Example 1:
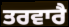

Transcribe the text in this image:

ਤਰਵਾਰੈ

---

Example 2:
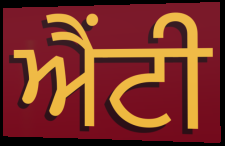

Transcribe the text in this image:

ਐਂਟੀ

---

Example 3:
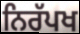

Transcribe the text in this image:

ਨਿਰੱਪਖ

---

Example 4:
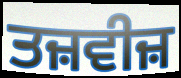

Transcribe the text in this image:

ਤਜ਼ਵੀਜ਼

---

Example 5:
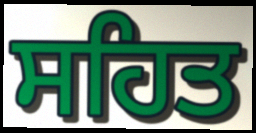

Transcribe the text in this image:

ਸਹਿਤ